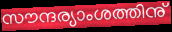
സൗന്ദര്യാംശത്തിനു്